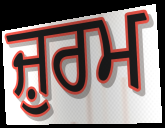
ਜ਼ੁਰਮ